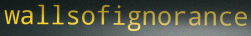
wallsofignorance